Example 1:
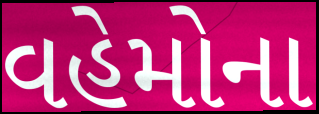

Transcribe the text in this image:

વહેમોના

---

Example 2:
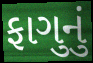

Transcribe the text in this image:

ફાગુનું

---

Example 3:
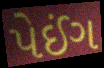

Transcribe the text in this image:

પેઈંગ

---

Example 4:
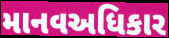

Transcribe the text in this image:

માનવઅધિકાર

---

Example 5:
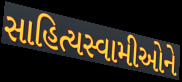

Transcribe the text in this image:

સાહિત્યસ્વામીઓને